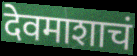
देवमाशाचं